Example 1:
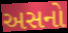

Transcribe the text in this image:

અસનો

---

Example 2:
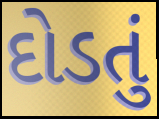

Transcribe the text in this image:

દોડતું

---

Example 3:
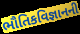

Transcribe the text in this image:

ભૌતિકવિજ્ઞાનની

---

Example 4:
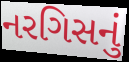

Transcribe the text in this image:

નરગિસનું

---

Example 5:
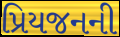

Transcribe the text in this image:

પ્રિયજનની